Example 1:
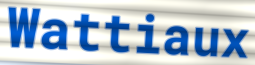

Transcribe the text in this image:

Wattiaux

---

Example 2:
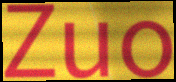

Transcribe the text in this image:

Zuo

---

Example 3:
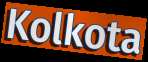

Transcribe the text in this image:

Kolkota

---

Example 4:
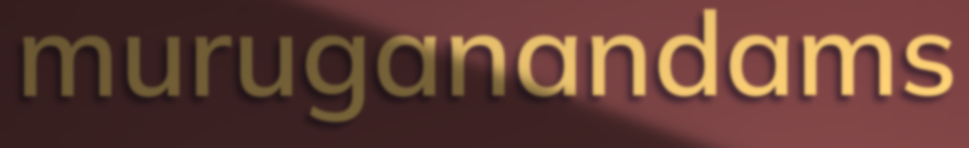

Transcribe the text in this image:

muruganandams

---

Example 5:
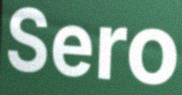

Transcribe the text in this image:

Sero